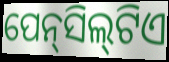
ପେନ୍‍ସିଲ୍‍ଟିଏ